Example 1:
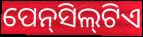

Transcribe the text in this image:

ପେନ୍‍ସିଲ୍‍ଟିଏ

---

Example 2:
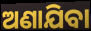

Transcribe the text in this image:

ଅଣାଯିବା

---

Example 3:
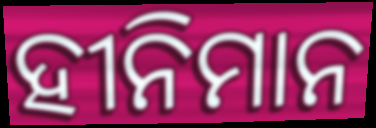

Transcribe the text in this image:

ହୀନିମାନ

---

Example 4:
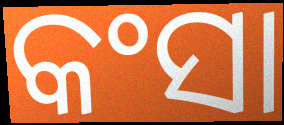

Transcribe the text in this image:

କଂସା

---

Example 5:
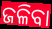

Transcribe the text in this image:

ଜଳିବା